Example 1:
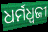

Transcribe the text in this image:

ଧର୍ମଧ୍ୱଜୀ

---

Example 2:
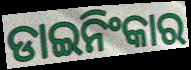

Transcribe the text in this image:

ଡାଇନିଂକାର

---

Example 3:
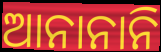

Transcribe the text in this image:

ଆନାନାନି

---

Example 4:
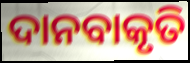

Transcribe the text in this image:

ଦାନବାକୃତି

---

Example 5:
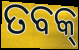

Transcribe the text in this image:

ତବକ୍